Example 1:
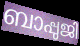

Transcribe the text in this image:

ബാപ്പുജി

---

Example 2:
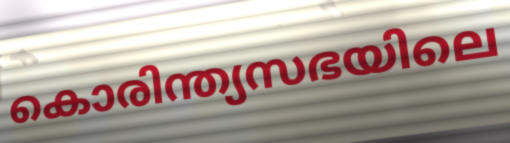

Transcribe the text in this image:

കൊരിന്ത്യസഭയിലെ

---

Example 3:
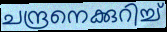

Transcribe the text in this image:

ചന്ദ്രനെക്കുറിച്ച്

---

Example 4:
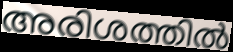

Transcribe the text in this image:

അരിശത്തിൽ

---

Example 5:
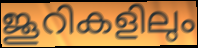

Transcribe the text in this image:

ജൂറികളിലും